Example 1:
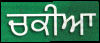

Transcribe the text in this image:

ਚਕੀਆ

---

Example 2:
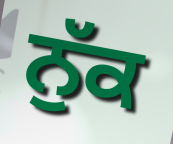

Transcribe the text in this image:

ਨੁੱਕ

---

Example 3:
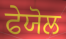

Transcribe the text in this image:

ਫੇਯੋਲ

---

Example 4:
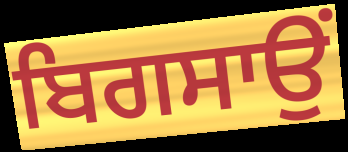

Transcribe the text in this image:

ਬਿਗਸਾਉਂ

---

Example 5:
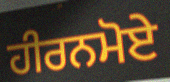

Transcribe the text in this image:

ਹੀਰਨਮੋਏ